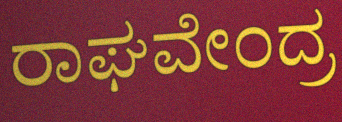
ರಾಘವೇಂದ್ರ